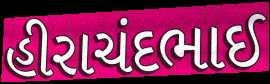
હીરાચંદભાઈ